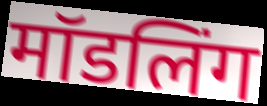
मॉडलिंग